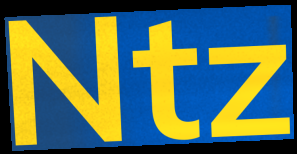
Ntz